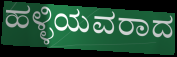
ಹಳ್ಳಿಯವರಾದ